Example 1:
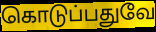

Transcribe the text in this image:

கொடுப்பதுவே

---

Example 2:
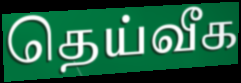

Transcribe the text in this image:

தெய்வீக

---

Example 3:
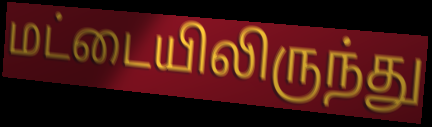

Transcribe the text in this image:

மட்டையிலிருந்து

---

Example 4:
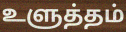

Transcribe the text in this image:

உளுத்தம்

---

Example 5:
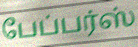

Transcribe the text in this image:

பேப்பர்ஸ்